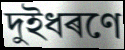
দুইধৰণে